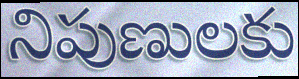
నిపుణులకు